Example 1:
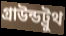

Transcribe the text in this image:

গ্রাউন্ডট্রুথ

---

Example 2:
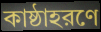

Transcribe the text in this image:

কাষ্ঠাহরণে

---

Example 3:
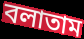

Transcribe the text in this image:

বলাতাম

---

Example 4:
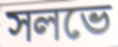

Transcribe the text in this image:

সলভে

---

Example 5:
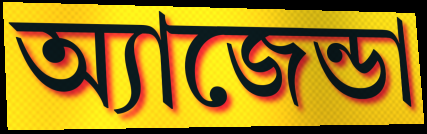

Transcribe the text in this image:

অ্যাজেন্ডা